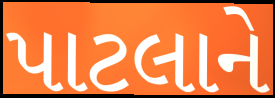
પાટલાને